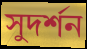
সুদৰ্শন